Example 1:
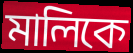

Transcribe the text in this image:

মালিকে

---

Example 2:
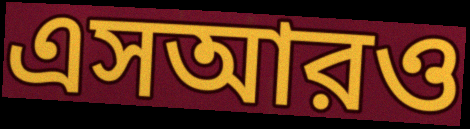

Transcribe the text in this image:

এসআরও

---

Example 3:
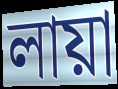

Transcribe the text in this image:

লায়া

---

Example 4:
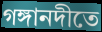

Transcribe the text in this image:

গঙ্গানদীতে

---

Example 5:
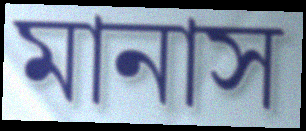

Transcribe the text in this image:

মানাস